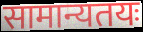
सामान्यतयः